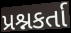
પ્રશ્નકર્તા